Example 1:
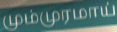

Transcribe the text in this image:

மும்முரமாய்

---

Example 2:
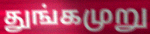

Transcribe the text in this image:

துங்கமுறு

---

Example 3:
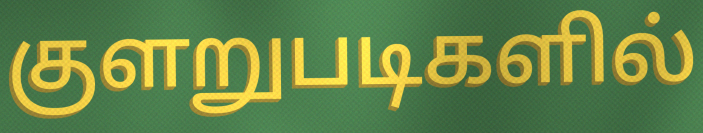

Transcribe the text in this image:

குளறுபடிகளில்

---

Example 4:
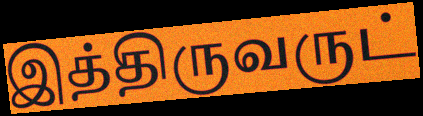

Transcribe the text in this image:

இத்திருவருட்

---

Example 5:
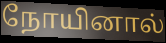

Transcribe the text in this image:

நோயினால்